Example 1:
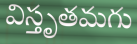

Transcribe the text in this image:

విస్తృతమగు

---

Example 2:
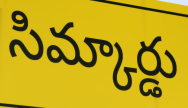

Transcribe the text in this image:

సిమ్కార్డు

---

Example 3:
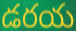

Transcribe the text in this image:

డరయ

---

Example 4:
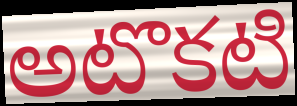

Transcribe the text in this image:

అటొకటి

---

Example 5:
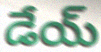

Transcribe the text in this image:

డేయ్